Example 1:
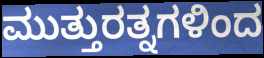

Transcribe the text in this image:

ಮುತ್ತುರತ್ನಗಳಿಂದ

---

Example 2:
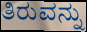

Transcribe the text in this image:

ತಿರುವನ್ನು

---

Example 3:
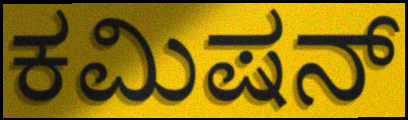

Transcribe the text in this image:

ಕಮಿಷನ್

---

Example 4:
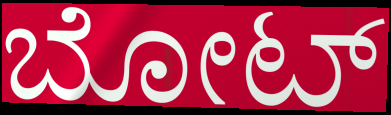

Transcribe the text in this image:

ಬೋಟ್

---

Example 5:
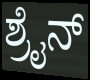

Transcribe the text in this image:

ಶ್ರೈನ್